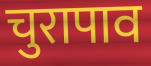
चुरापाव